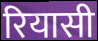
रियासी